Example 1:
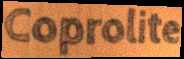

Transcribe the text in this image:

Coprolite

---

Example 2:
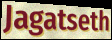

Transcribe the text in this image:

Jagatseth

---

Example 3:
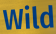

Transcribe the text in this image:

Wild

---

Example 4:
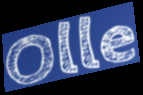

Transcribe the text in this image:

Olle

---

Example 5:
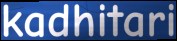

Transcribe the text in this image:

kadhitari